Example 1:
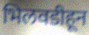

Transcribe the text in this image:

भिलवडीहून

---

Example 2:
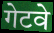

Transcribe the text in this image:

गेटवे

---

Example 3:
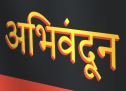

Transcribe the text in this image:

अभिवंदून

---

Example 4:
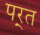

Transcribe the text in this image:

पर्त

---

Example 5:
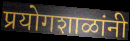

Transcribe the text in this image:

प्रयोगशाळांनी